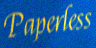
Paperless